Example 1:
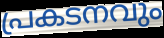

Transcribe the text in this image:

പ്രകടനവും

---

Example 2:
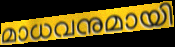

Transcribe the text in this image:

മാധവനുമായി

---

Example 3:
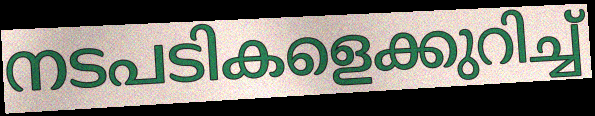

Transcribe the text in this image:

നടപടികളെക്കുറിച്ച്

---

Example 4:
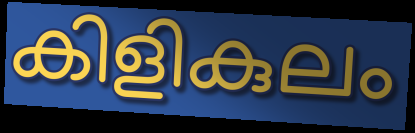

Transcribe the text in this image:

കിളികുലം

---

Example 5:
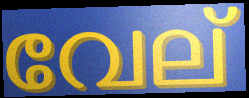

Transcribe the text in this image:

വേല്